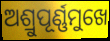
ଅଶ୍ରୁପୂର୍ଣ୍ଣମୁଖେ